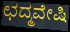
ಛದ್ಮವೇಷಿ